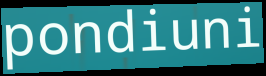
pondiuni